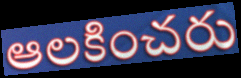
ఆలకించరు